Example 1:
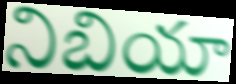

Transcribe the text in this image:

నిబియా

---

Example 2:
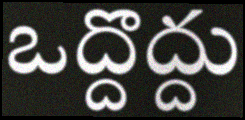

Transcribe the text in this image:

ఒద్దొద్దు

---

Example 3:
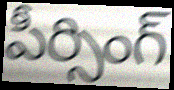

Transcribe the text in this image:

పీర్సింగ్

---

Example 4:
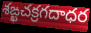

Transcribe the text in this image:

శఙ్ఖచక్రగదాధర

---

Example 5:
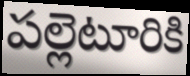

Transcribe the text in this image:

పల్లెటూరికి